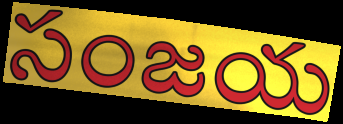
సంజయ